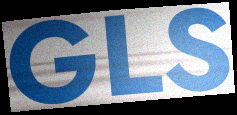
GLS